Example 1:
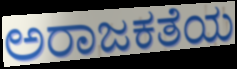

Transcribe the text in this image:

ಅರಾಜಕತೆಯ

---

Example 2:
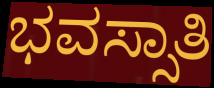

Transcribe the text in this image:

ಭವಸ್ಸಾತಿ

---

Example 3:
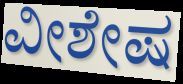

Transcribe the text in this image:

ವೀಶೇಷ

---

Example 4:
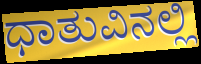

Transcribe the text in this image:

ಧಾತುವಿನಲ್ಲಿ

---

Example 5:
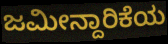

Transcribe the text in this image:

ಜಮೀನ್ದಾರಿಕೆಯ